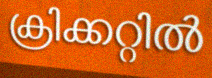
ക്രിക്കറ്റിൽ